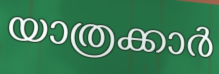
യാത്രക്കാർ